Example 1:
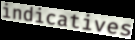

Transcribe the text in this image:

indicatives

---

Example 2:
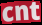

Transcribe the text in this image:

cnt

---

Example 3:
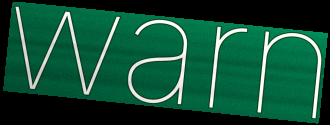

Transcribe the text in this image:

warn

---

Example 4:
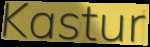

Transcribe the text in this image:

Kastur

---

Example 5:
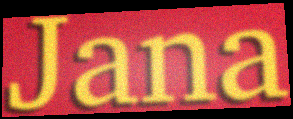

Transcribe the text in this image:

Jana